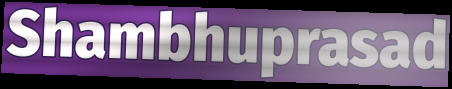
Shambhuprasad